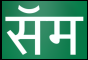
सॅम